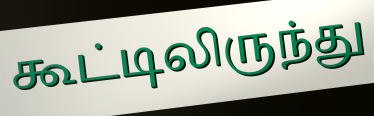
கூட்டிலிருந்து